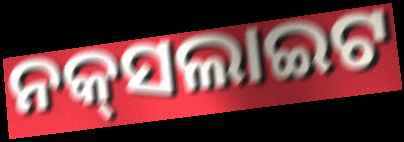
ନକ୍‌ସଲାଇଟ